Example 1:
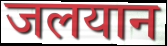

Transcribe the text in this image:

जलयान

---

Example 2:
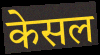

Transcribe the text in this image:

केसल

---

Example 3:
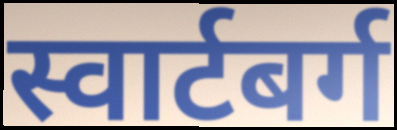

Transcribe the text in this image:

स्वार्टबर्ग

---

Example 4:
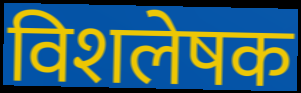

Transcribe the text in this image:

विशलेषक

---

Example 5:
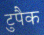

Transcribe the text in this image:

टुपैक